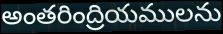
అంతరింద్రియములను